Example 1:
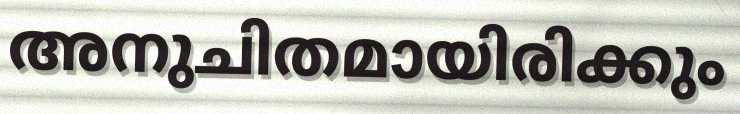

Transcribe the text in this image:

അനുചിതമായിരിക്കും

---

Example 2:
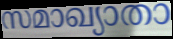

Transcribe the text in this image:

സമാഖ്യാതാ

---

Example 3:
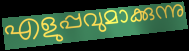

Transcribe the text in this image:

എളുപ്പവുമാക്കുന്നു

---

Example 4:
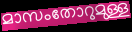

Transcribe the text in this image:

മാസംതോറുമുള്ള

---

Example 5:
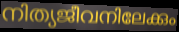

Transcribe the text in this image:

നിത്യജീവനിലേക്കും